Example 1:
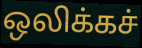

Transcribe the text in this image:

ஒலிக்கச்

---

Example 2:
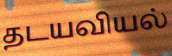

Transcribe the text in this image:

தடயவியல்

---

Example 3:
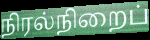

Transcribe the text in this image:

நிரல்நிறைப்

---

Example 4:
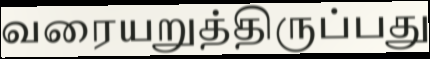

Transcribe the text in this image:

வரையறுத்திருப்பது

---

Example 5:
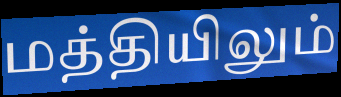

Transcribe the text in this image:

மத்தியிலும்